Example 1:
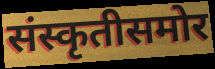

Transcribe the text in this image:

संस्कृतीसमोर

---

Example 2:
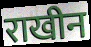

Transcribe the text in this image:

राखीन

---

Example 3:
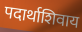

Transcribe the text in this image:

पदार्थाशिवाय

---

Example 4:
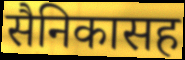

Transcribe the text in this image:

सैनिकासह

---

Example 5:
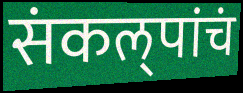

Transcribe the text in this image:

संकल्पांचं